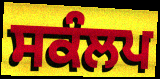
ਸਕੰਲਪ